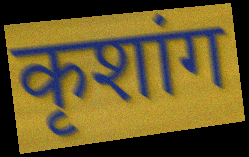
कृशांग